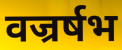
वज्रर्षभ